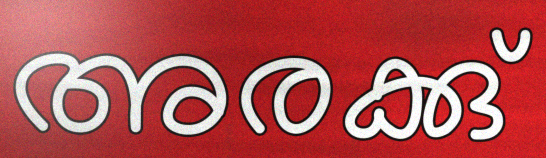
അരക്കു്